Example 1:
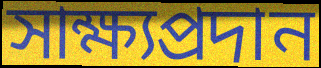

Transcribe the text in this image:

সাক্ষ্যপ্রদান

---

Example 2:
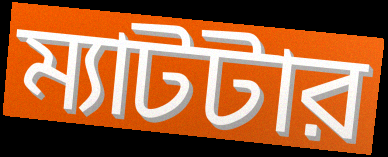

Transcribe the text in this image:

ম্যাটটার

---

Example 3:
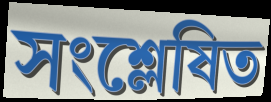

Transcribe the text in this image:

সংশ্লেষিত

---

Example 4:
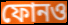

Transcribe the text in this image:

ফোনও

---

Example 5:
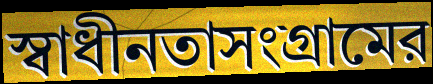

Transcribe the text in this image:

স্বাধীনতাসংগ্রামের